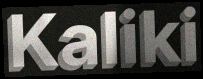
Kaliki